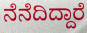
ನೆನೆದಿದ್ದಾರೆ